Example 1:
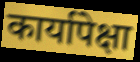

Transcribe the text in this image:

कार्यापेक्षा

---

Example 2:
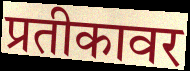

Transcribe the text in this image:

प्रतीकावर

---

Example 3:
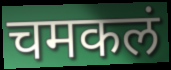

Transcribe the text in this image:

चमकलं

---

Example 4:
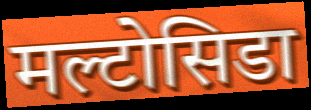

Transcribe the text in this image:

मल्टोसिडा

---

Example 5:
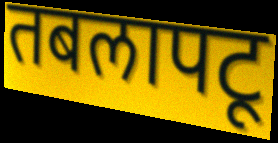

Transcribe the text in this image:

तबलापटू